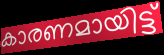
കാരണമായിട്ട്